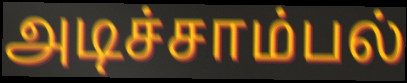
அடிச்சாம்பல்